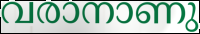
വരാനാണു